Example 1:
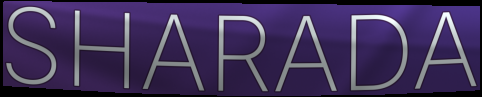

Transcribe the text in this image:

SHARADA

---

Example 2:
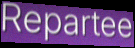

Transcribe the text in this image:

Repartee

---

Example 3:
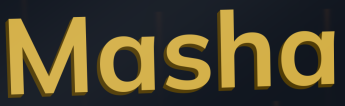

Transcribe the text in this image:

Masha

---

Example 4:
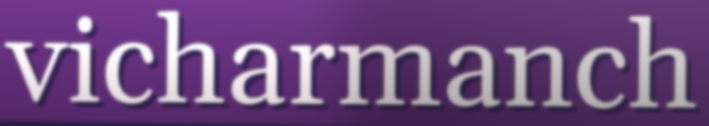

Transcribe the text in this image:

vicharmanch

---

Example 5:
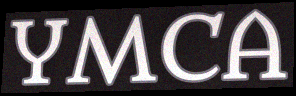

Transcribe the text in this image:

YMCA